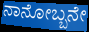
ನಾನೋಬ್ಬನೇ